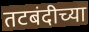
तटबंदीच्या